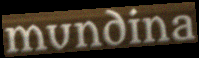
mundina